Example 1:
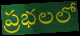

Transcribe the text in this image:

ప్రభలలో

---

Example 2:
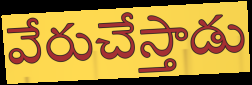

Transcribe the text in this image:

వేరుచేస్తాడు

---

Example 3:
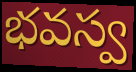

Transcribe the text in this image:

భవస్వ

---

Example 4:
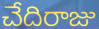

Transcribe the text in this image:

చేదిరాజు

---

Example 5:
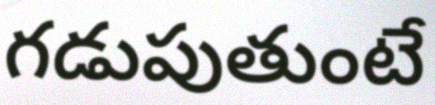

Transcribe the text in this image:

గడుపుతుంటే